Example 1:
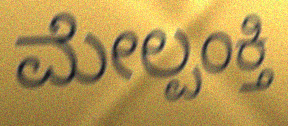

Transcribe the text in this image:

ಮೇಲ್ಪಂಕ್ತಿ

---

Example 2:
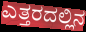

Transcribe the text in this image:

ಎತ್ತರದಲ್ಲಿನ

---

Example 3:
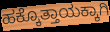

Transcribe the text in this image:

ಹಕ್ಕೊತ್ತಾಯಕ್ಕಾಗಿ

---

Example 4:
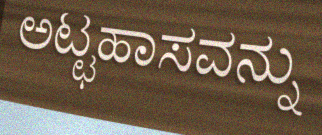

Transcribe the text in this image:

ಅಟ್ಟಹಾಸವನ್ನು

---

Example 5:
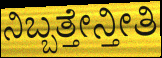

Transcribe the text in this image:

ನಿಬ್ಬತ್ತೇನ್ತೀತಿ